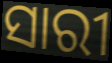
ସାରୀ